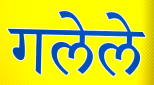
गलेले